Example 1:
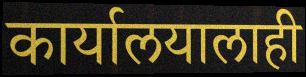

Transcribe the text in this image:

कार्यालयालाही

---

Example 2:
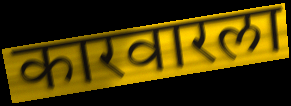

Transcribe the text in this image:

कारवारला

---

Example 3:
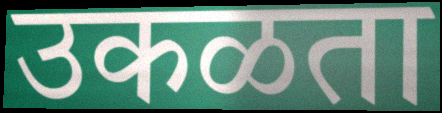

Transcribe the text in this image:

उकळता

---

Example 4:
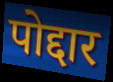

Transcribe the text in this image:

पोद्दार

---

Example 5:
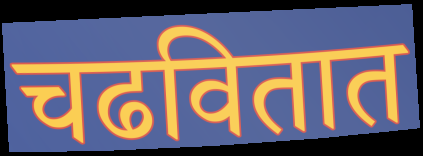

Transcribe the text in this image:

चढवितात